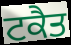
ਟਕੈਤ